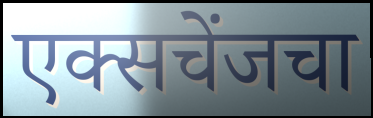
एक्सचेंजचा